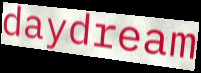
daydream